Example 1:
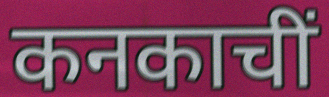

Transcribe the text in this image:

कनकाचीं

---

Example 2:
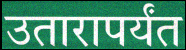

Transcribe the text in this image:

उतारापर्यंत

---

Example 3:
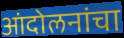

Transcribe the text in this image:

आंदोलनांचा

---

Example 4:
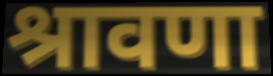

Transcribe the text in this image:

श्रावणा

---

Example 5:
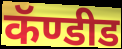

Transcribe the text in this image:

कॅण्डीड